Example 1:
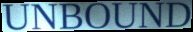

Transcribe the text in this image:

UNBOUND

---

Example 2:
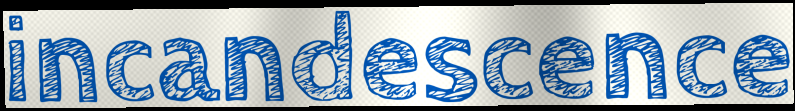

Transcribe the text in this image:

incandescence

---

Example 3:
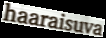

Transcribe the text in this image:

haaraisuva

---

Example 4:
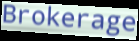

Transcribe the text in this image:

Brokerage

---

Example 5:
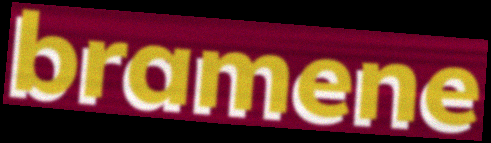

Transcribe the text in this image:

bramene